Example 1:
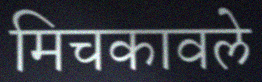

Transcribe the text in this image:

मिचकावले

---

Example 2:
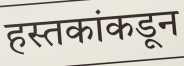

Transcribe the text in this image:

हस्तकांकडून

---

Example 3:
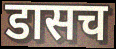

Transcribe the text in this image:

डासच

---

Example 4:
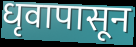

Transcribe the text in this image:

धृवापासून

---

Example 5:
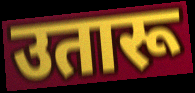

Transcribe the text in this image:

उतारू